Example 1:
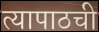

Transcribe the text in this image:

त्यापाठची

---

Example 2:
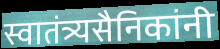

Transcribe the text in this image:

स्वातंत्र्यसैनिकांनी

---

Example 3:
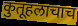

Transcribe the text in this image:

कुतूहलाचाच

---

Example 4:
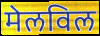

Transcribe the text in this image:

मेलविल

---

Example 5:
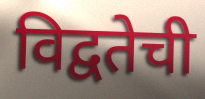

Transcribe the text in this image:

विद्वतेची